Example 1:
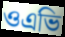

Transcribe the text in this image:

ওএভি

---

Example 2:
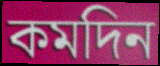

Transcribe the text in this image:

কমদিন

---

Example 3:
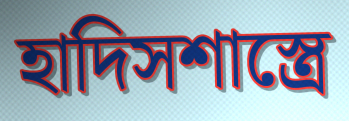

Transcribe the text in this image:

হাদিসশাস্ত্রে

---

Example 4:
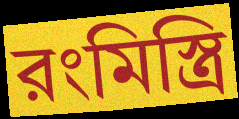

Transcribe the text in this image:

রংমিস্ত্রি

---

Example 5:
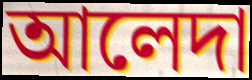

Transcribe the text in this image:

আলেদা